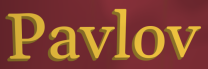
Pavlov